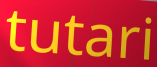
tutari